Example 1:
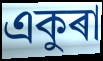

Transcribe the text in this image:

একুৰা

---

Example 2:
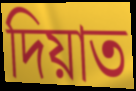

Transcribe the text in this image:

দিয়াত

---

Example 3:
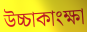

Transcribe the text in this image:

উচ্চাকাংক্ষা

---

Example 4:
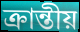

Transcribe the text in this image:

ক্ৰান্তীয়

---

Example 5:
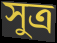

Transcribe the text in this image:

সুত্ৰ